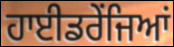
ਹਾਈਡਰੇਂਜਿਆਂ